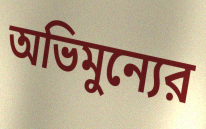
অভিমুন্যের